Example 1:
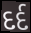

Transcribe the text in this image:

દર્દ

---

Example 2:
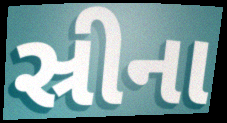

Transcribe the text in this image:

સ્રીના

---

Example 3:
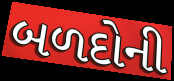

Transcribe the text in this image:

બળદોની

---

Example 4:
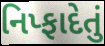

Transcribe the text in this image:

નિપ્ફાદેતું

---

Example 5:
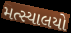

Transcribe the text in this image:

મત્સ્યાલયો